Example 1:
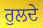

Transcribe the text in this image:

ਰੁਲਦੇ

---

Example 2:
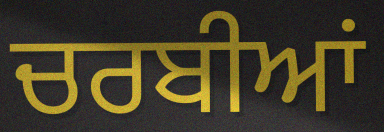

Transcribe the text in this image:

ਚਰਬੀਆਂ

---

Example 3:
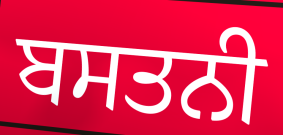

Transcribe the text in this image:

ਬਸਤਨੀ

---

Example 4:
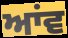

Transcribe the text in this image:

ਆਂਵ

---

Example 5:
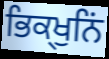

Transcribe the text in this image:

ਭਿਕ੍ਖੁਨਿਂ